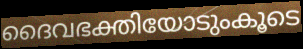
ദൈവഭക്തിയോടുംകൂടെ